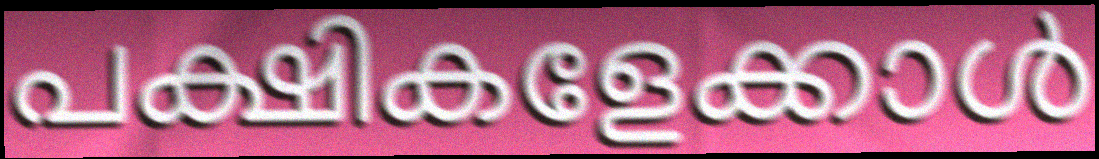
പക്ഷികളേക്കാൾ